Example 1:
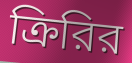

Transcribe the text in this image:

ক্রিরির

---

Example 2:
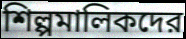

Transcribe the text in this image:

শিল্পমালিকদের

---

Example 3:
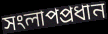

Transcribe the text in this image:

সংলাপপ্রধান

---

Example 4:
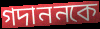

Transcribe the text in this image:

গদাননকে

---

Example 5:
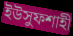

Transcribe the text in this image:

ইউসুফশাহী